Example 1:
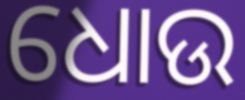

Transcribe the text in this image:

ଧୋଉ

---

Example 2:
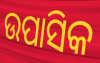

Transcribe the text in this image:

ଉପାସିକ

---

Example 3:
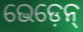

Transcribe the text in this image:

ଭେଡ଼େନ୍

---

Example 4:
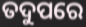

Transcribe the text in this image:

ତଦୁପରେ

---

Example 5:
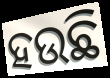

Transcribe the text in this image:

ହଉଛି